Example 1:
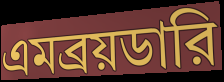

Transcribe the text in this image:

এমব্রয়ডারি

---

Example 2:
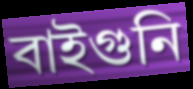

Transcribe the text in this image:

বাইগুনি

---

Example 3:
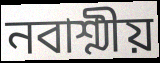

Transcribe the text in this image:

নবাশ্মীয়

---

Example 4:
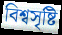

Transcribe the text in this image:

বিশ্বসৃষ্টি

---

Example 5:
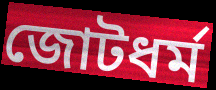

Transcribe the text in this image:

জোটধর্ম